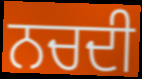
ਨਚਦੀ